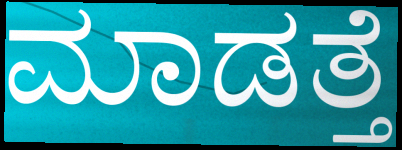
ಮಾಡತ್ತೆ